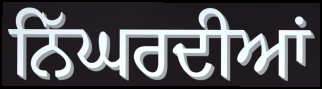
ਨਿੱਘਰਦੀਆਂ